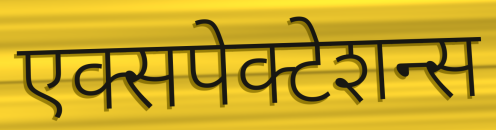
एक्सपेक्टेशन्स